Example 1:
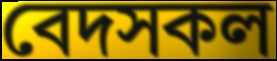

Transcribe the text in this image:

বেদসকল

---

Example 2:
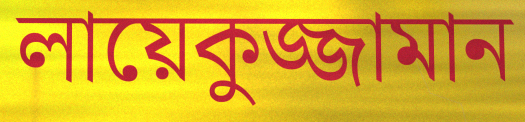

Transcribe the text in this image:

লায়েকুজ্জামান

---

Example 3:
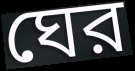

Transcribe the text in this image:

ঘের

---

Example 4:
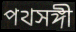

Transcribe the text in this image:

পথসঙ্গী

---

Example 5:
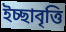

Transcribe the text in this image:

ইচ্ছাবৃত্তি